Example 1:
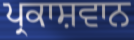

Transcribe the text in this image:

ਪ੍ਰਕਾਸ਼ਵਾਨ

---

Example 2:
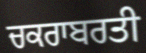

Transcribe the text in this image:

ਚਕਰਾਬਰਤੀ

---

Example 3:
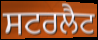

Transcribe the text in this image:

ਸਟਰਲੈਟ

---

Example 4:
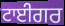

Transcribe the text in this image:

ਟਾਈਗਰ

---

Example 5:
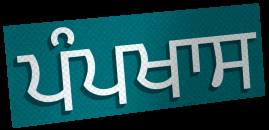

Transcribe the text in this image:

ਪੰਪਖਾਸ